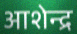
आशेन्द्र